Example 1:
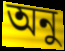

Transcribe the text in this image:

অনু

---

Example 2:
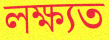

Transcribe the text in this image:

লক্ষ্যত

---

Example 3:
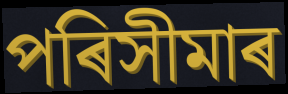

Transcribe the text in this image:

পৰিসীমাৰ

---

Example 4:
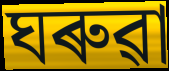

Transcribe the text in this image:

ঘৰুৱা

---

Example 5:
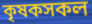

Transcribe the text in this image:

কৃষকসকল